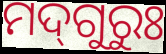
ମଦ୍‌ଗୁରୁଃ